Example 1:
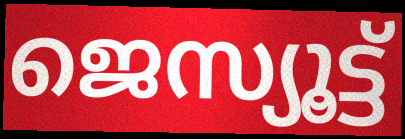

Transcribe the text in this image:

ജെസ്യൂട്ട്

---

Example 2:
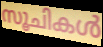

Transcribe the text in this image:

സൂചികൾ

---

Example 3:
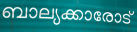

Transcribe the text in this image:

ബാല്യക്കാരോട്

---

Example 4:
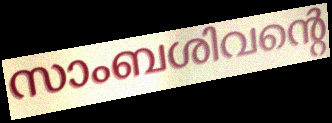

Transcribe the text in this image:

സാംബശിവന്റെ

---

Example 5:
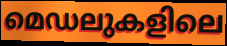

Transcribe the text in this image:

മെഡലുകളിലെ